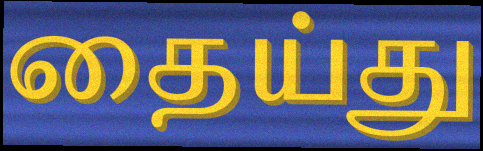
தைய்து